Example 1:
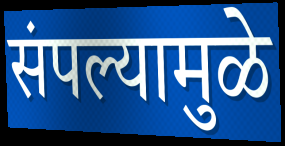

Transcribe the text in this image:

संपल्यामुळे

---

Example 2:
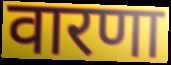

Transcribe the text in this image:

वारणा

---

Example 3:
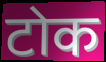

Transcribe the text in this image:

टोक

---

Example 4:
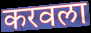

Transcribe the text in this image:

करवला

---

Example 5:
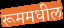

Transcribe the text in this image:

रूममधील